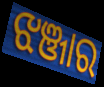
ଝଞ୍ଜାର